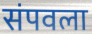
संपवला